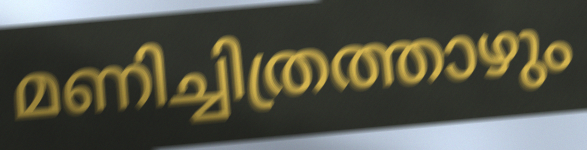
മണിച്ചിത്രത്താഴും